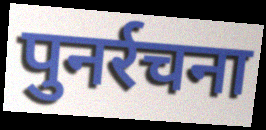
पुनर्रचना